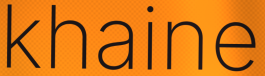
khaine